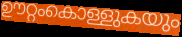
ഊറ്റംകൊള്ളുകയും